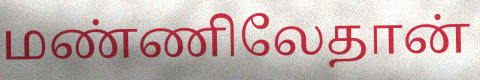
மண்ணிலேதான்